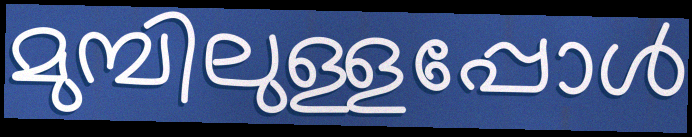
മുമ്പിലുള്ളപ്പോൾ